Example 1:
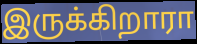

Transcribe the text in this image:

இருக்கிறாரா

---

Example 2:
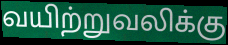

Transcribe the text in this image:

வயிற்றுவலிக்கு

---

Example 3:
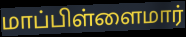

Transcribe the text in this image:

மாப்பிள்ளைமார்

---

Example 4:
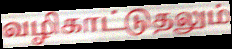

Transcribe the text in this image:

வழிகாட்டுதலும்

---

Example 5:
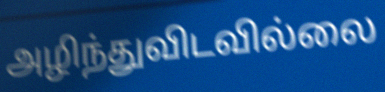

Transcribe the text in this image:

அழிந்துவிடவில்லை